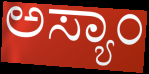
ಅಸ್ಯಾಂ